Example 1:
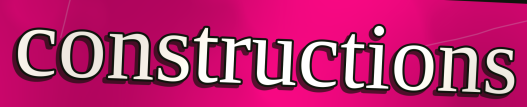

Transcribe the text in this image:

constructions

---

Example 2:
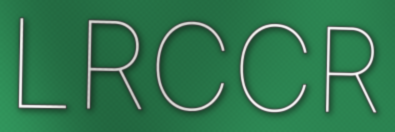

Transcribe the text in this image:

LRCCR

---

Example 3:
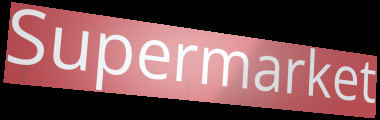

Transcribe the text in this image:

Supermarket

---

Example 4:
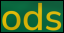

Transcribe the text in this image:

ods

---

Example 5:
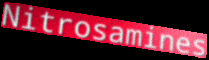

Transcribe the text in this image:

Nitrosamines